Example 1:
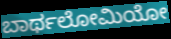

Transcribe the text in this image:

ಬಾರ್ಥಲೋಮಿಯೋ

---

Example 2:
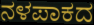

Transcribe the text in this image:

ನಳಪಾಕದ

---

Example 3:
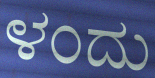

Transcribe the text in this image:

ಳಂದು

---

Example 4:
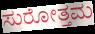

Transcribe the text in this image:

ಸುರೋತ್ತಮ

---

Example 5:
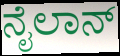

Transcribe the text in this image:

ನೈಲಾನ್